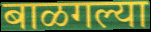
बाळगल्या